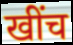
खींच